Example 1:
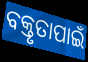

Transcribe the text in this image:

ବକ୍ତୃତାପାଇଁ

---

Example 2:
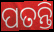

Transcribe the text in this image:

ପତନ୍ତି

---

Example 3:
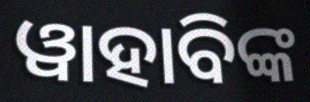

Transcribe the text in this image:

ୱାହାବିଙ୍କ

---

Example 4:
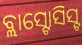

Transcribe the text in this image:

ବ୍ଲାସ୍ଟୋସିସ୍ଟ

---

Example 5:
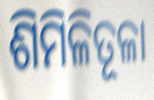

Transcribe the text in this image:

ଶିମିଳିତୂଳା